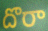
దొరా